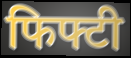
फिफ्टी